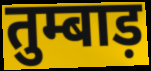
तुम्बाड़